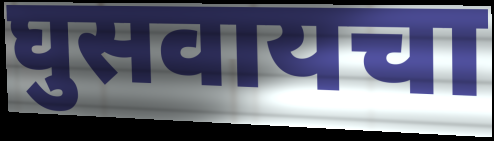
घुसवायचा